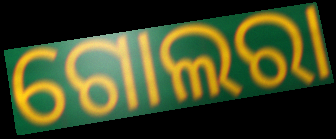
ଗୋଲରା